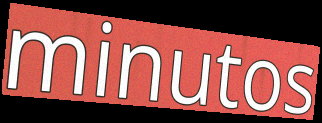
minutos